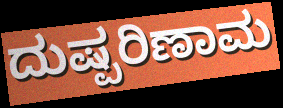
ದುಷ್ಪರಿಣಾಮ